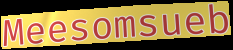
Meesomsueb